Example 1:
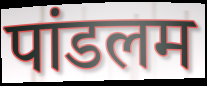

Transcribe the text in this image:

पांडलम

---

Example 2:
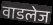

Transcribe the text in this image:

वाडलेज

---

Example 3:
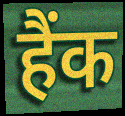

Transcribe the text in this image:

हैंक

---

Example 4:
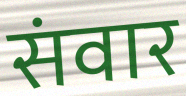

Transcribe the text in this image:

संवार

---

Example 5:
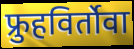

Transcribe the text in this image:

फ्रुहविर्तोवा